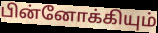
பின்னோக்கியும்